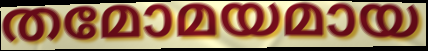
തമോമയമായ